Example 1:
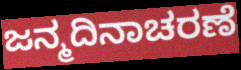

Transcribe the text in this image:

ಜನ್ಮದಿನಾಚರಣೆ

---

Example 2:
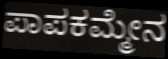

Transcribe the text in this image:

ಪಾಪಕಮ್ಮೇನ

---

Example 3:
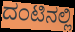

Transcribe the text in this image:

ದಂಟಿನಲ್ಲಿ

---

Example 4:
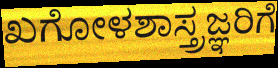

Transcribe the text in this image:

ಖಗೋಳಶಾಸ್ತ್ರಜ್ಞರಿಗೆ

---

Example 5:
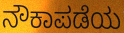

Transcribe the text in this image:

ನೌಕಾಪಡೆಯ